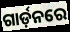
ଗାର୍ଡ଼ନରେ